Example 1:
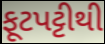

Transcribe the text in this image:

ફૂટપટ્ટીથી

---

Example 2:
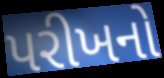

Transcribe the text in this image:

પરીખનો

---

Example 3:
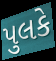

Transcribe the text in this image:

પુલકે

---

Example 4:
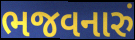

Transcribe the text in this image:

ભજવનારું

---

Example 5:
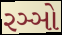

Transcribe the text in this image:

રઞ્ઞો